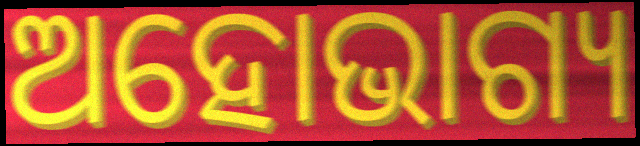
ଅହୋଭାଗ୍ୟ